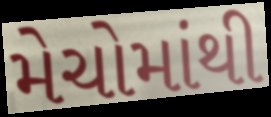
મેચોમાંથી